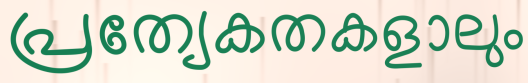
പ്രത്യേകതകളാലും